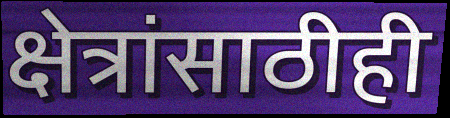
क्षेत्रांसाठीही